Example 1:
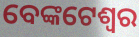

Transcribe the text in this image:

ବେଙ୍କଟେଶ୍ୱର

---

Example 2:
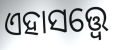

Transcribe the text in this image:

ଏହାସତ୍ତ୍ବେ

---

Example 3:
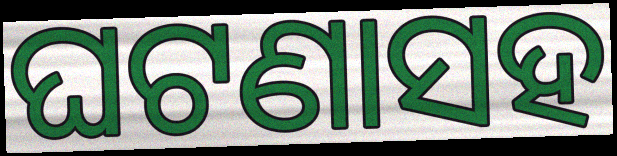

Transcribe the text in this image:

ଘଟଣାସହ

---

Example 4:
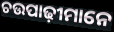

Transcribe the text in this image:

ଚଉପାଢ଼ୀମାନେ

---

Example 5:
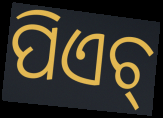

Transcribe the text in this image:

ପିଏଚ୍